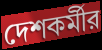
দেশকর্মীর